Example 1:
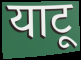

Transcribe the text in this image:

याटू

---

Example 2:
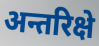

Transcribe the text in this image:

अन्तरिक्षे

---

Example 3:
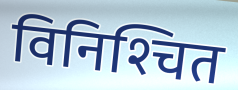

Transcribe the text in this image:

विनिश्चित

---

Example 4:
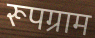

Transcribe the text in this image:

रूपग्राम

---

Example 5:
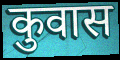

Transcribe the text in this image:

कुवास